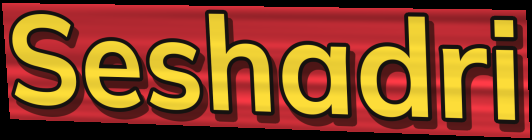
Seshadri